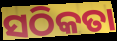
ସଠିକତା